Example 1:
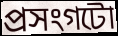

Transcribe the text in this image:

প্ৰসংগটো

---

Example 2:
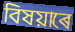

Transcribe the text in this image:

বিষয়াৰে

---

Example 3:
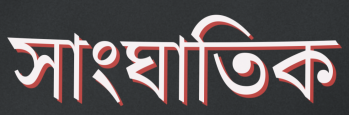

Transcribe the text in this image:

সাংঘাতিক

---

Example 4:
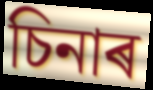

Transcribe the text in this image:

চিনাৰ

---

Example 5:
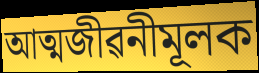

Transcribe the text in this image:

আত্মজীৱনীমূলক